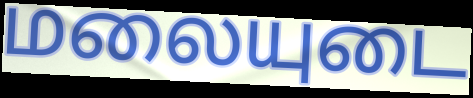
மலையுடை